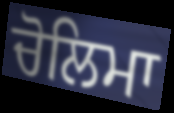
ਚੋਲਿਮਾ